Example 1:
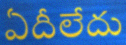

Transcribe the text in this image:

ఏదీలేదు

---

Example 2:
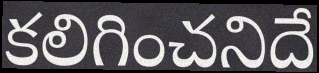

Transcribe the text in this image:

కలిగించనిదే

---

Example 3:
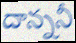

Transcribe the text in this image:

దాన్ననీ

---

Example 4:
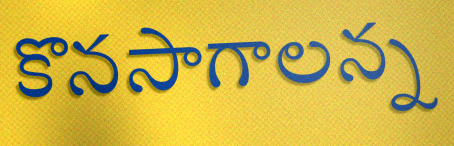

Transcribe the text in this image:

కొనసాగాలన్న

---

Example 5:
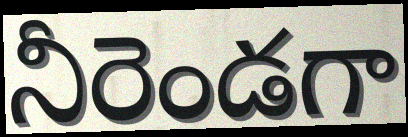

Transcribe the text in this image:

నీరెండగా